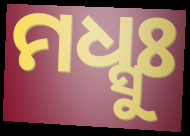
ମଧ୍ସୁଃ